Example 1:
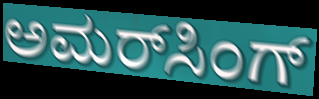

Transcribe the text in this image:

ಅಮರ್‌ಸಿಂಗ್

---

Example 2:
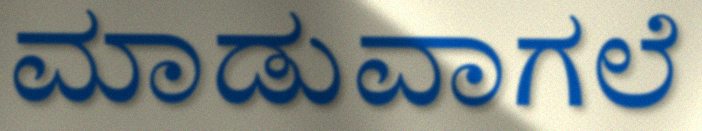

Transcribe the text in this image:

ಮಾಡುವಾಗಲೆ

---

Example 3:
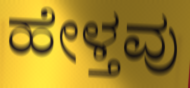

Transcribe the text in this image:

ಹೇಳ್ತವು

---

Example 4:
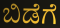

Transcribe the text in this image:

ಬಿಡೆಗೆ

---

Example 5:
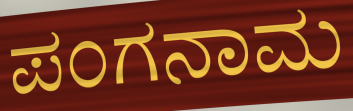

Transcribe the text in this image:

ಪಂಗನಾಮ